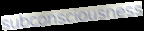
subconsciousness